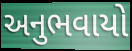
અનુભવાયો